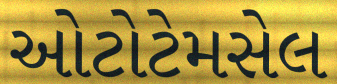
ઓટોટેમસેલ